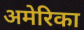
अमेरिका